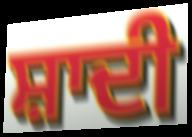
ਸ਼ਾਦੀ